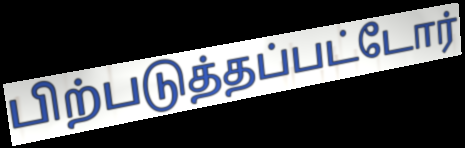
பிற்படுத்தப்பட்டோர்